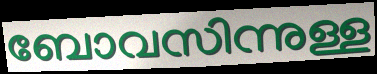
ബോവസിന്നുള്ള